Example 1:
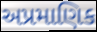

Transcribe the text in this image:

અપ્રમાણિક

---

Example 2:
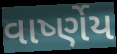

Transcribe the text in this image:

વાર્ષ્ણેય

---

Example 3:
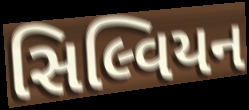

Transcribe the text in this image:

સિલ્વિયન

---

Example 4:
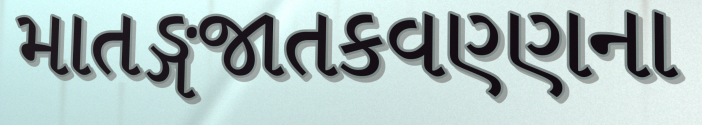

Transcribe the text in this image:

માતઙ્ગજાતકવણ્ણના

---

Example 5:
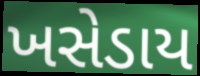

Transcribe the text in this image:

ખસેડાય